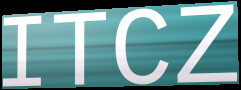
ITCZ